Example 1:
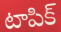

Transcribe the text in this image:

టాపిక్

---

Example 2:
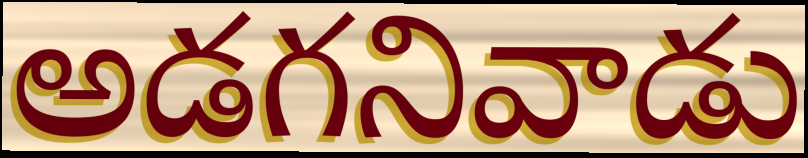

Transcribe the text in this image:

అడగనివాడు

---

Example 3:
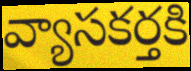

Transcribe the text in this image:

వ్యాసకర్తకి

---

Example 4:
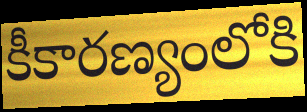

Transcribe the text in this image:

కీకారణ్యంలోకి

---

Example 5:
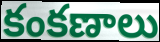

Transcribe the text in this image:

కంకణాలు